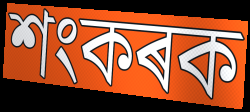
শংকৰক